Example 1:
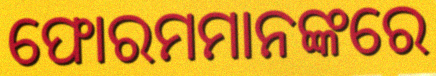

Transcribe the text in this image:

ଫୋରମମାନଙ୍କରେ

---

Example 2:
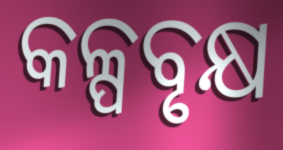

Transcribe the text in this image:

କଳ୍ପବୃକ୍ଷ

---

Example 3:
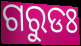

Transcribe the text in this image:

ଗରୁଡଃ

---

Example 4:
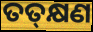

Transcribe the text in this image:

ତତ୍‌କ୍ଷଣ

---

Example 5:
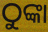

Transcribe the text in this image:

ଠୁଙ୍କା